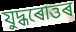
যুদ্ধৰোত্তৰ